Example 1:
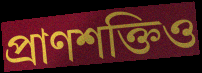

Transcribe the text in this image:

প্রাণশক্তিও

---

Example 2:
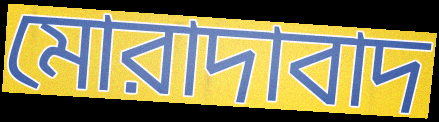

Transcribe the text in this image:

মোরাদাবাদ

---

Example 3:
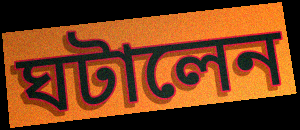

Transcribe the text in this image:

ঘটালেন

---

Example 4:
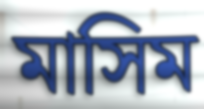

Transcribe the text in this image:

মাসিম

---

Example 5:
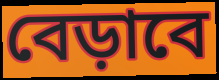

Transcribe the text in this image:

বেড়াবে